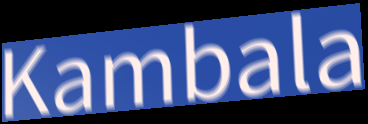
Kambala